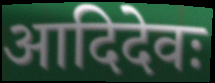
आदिदेवः